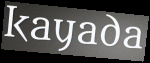
kayada